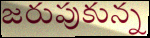
జరుపుకున్న